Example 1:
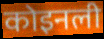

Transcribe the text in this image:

कोइनली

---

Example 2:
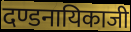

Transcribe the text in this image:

दण्डनायिकाजी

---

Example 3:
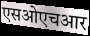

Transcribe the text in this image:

एसओएचआर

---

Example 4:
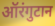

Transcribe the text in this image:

ऑरंगुटान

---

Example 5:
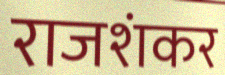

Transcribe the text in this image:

राजशंकर